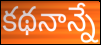
కథనాన్నే